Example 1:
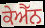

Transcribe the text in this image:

ਕੇਐੱਨ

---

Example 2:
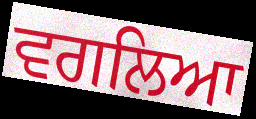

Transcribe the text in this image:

ਵਗਲਿਆ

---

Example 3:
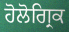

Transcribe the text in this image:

ਹੋਲੋਗ੍ਰਿਕ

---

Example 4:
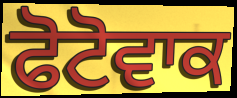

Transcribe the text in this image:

ਫੋਟੋਵਾਕ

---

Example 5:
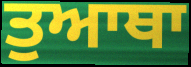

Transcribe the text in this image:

ਤੁਆਥਾ